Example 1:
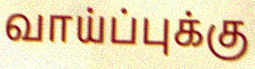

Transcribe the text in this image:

வாய்ப்புக்கு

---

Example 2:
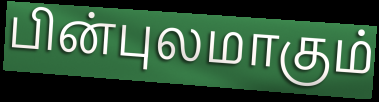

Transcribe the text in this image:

பின்புலமாகும்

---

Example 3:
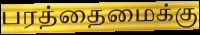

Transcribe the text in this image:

பரத்தைமைக்கு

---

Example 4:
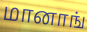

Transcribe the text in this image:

மானாங்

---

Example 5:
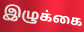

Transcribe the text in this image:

இழுக்கை